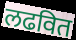
लढवित